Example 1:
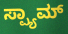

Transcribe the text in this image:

ಸ್ಪ್ಯಾಮ್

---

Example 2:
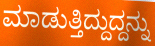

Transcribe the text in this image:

ಮಾಡುತ್ತಿದ್ದುದ್ದನ್ನು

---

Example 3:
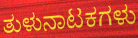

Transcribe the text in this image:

ತುಳುನಾಟಕಗಳು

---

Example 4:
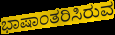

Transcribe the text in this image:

ಭಾಷಾಂತರಿಸಿರುವ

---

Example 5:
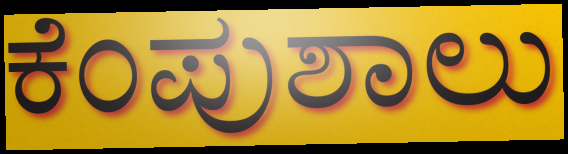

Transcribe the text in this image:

ಕೆಂಪುಶಾಲು